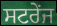
ਸਟਰੇਂਜ